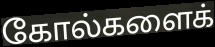
கோல்களைக்